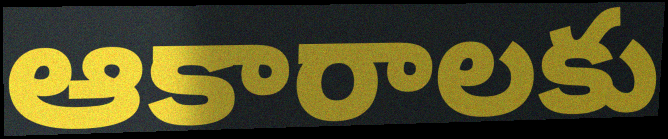
ఆకారాలకు